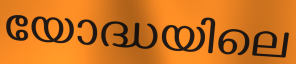
യോദ്ധയിലെ